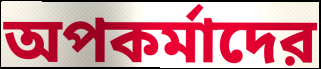
অপকর্মাদের